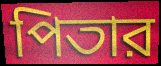
পিতার